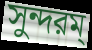
সুন্দরম্